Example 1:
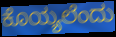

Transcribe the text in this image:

ಕೊಯ್ಯಲೆಂದು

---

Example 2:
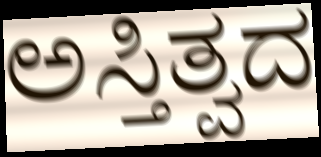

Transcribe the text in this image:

ಅಸ್ತಿತ್ವದ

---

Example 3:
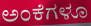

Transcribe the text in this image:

ಅಂಕೆಗಳೂ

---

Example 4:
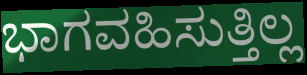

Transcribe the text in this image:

ಭಾಗವಹಿಸುತ್ತಿಲ್ಲ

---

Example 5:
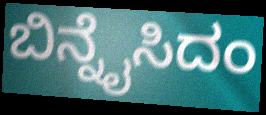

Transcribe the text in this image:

ಬಿನ್ನೈಸಿದಂ